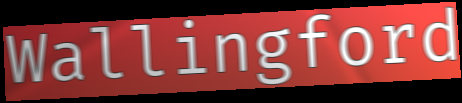
Wallingford